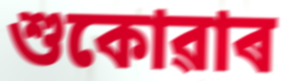
শুকোৱাৰ